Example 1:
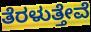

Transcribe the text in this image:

ತೆರಳುತ್ತೇವೆ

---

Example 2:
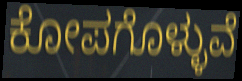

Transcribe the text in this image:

ಕೋಪಗೊಳ್ಳುವೆ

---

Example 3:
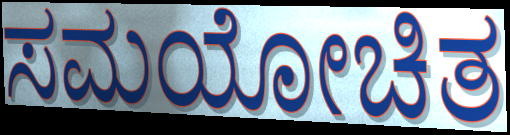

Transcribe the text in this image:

ಸಮಯೋಚಿತ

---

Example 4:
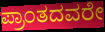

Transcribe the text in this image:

ಪ್ರಾಂತದವರೇ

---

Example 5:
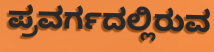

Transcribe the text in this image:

ಪ್ರವರ್ಗದಲ್ಲಿರುವ